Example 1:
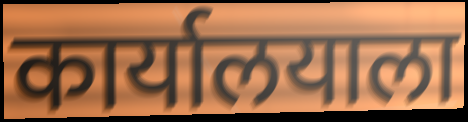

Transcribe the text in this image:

कार्यालयाला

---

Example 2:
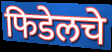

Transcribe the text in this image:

फिडेलचे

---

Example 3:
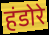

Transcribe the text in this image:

हंडोरे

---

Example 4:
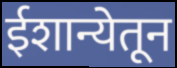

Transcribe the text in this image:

ईशान्येतून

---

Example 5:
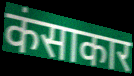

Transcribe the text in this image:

कंसाकार